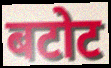
बटोट